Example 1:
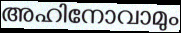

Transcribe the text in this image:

അഹിനോവാമും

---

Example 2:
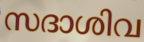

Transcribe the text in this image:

സദാശിവ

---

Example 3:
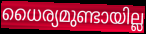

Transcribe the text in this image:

ധൈര്യമുണ്ടായില്ല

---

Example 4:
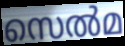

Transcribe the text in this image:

സെൽമ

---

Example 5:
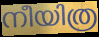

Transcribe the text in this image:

നീയിത്ര